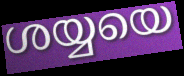
ശയ്യയെ